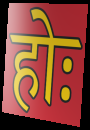
होः